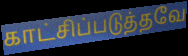
காட்சிப்படுத்தவே